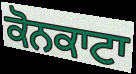
ਕੋਨਕਾਟਾ